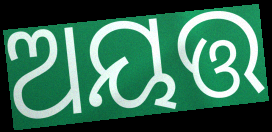
ଅୟତ୍ତ